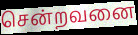
சென்றவனை